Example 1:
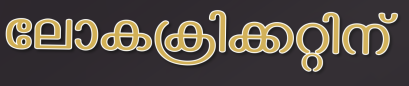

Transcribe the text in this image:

ലോകക്രിക്കറ്റിന്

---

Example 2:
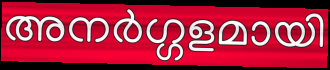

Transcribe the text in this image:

അനർഗ്ഗളമായി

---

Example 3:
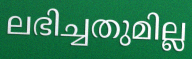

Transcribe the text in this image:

ലഭിച്ചതുമില്ല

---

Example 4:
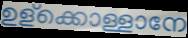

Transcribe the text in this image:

ഉള്ക്കൊള്ളാനേ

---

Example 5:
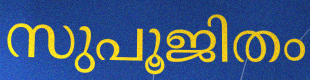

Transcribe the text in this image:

സുപൂജിതം